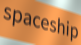
spaceship